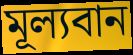
মূল্যবান